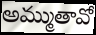
అమ్ముతావో